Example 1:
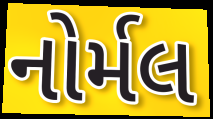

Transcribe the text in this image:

નોર્મલ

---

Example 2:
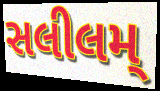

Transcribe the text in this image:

સલીલમ્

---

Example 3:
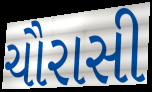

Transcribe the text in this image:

ચૌરાસી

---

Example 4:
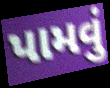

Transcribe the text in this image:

પામવું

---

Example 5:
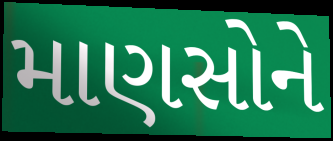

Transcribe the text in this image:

માણસોને